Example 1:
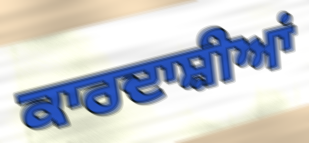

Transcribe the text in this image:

ਕਾਰਦਾਸ਼ੀਆਂ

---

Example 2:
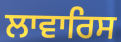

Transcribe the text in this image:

ਲਾਵਾਰਿਸ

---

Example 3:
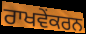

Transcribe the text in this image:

ਰਾਖਵੇਂਕਰਨ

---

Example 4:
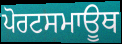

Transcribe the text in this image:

ਪੋਰਟਸਮਾਊਥ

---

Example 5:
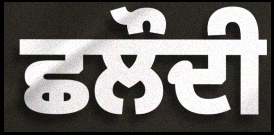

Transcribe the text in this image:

ਛਲੌਦੀ